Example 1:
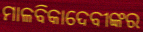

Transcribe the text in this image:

ମାଳବିକାଦେବୀଙ୍କର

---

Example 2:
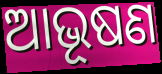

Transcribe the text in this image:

ଆଭୂଷଣ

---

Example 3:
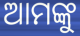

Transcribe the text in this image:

ଆମଙ୍କୁ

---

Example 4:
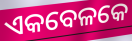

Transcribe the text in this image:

ଏକବେଳକେ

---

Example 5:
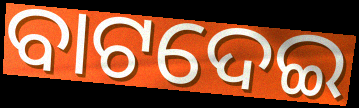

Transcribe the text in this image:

ବାଟଦେଇ